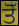
ਤੋੱ